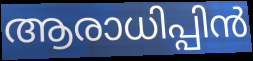
ആരാധിപ്പിൻ